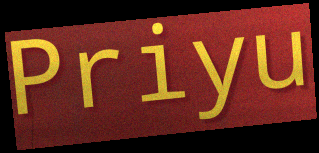
Priyu